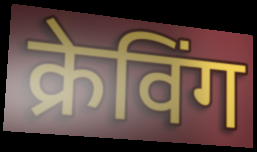
क्रेविंग